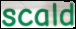
scald